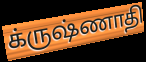
க்ருஷ்ணாதி